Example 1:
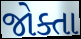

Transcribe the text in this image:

જોક્તા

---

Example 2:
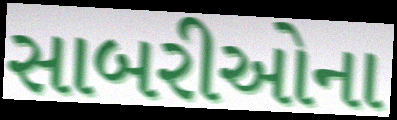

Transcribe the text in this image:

સાબરીઓના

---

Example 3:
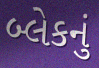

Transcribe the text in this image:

બ્લેકનું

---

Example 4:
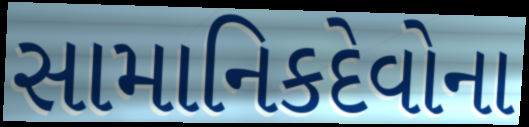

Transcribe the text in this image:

સામાનિકદેવોના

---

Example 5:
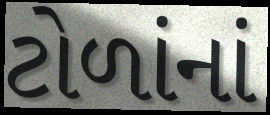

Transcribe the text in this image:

ટોળાંનાં